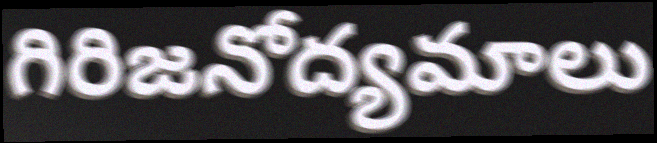
గిరిజనోద్యమాలు